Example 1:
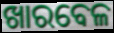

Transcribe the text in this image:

ଖାରବେଳ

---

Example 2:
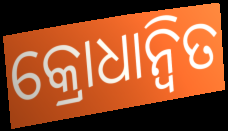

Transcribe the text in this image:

କ୍ରୋଧାନ୍ୱିତ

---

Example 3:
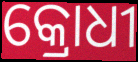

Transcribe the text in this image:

କ୍ରୋଧୀ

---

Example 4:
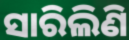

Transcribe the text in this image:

ସାରିଲିଣି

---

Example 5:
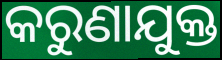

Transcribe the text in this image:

କରୁଣାଯୁକ୍ତ